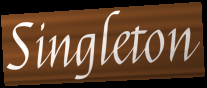
Singleton